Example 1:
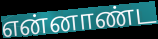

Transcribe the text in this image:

என்னாண்ட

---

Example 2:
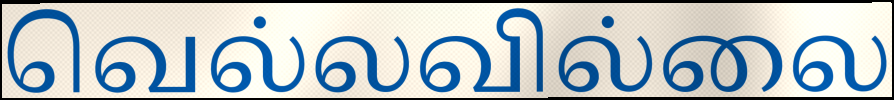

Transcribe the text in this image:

வெல்லவில்லை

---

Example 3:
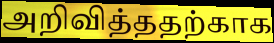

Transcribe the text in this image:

அறிவித்ததற்காக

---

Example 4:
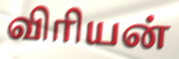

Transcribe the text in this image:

விரியன்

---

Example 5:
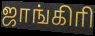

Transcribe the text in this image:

ஜாங்கிரி